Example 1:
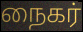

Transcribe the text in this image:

நைகர்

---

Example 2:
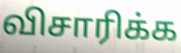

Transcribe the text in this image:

விசாரிக்க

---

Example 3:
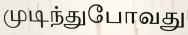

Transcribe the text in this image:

முடிந்துபோவது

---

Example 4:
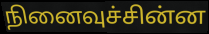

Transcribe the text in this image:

நினைவுச்சின்ன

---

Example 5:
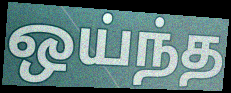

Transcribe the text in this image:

ஒய்ந்த